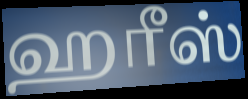
ஹரீஸ்